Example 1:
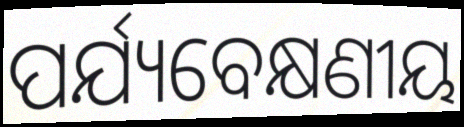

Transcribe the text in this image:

ପର୍ଯ୍ୟବେକ୍ଷଣୀୟ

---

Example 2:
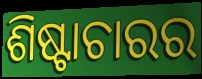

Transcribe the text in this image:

ଶିଷ୍ଟାଚାରର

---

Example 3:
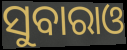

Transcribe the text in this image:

ସୁବାରାଓ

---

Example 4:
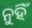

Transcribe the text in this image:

ନୁହିଁ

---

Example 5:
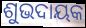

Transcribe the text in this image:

ଶୁଭଦାୟକ